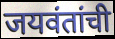
जयवंतांची